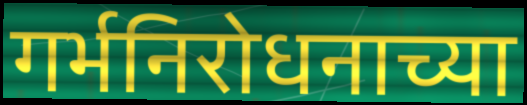
गर्भनिरोधनाच्या